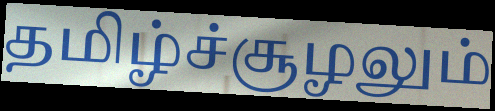
தமிழ்ச்சூழலும்